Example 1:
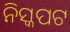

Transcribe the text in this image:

ନିସ୍କପଟ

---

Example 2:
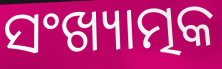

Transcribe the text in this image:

ସଂଖ୍ୟାତ୍ମକ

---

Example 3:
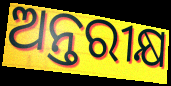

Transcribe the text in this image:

ଅନ୍ତରୀକ୍ଷ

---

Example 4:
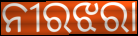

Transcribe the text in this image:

ନୀରଝରା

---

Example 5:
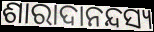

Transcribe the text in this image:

ଶାରାଦାନନ୍ଦସ୍ୟ